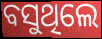
ବସୁଥିଲେ